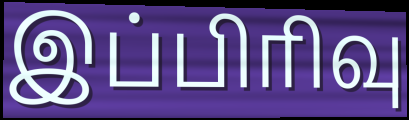
இப்பிரிவு